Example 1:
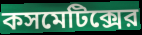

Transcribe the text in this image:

কসমেটিক্সের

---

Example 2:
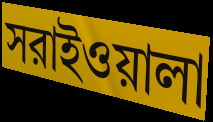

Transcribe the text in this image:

সরাইওয়ালা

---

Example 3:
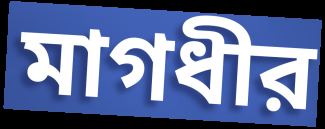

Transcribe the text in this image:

মাগধীর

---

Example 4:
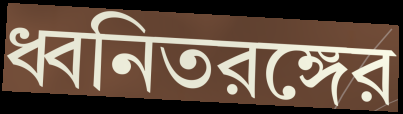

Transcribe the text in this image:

ধ্বনিতরঙ্গের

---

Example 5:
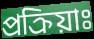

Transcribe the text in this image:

প্রক্রিয়াঃ